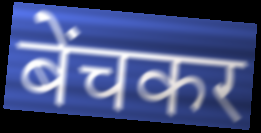
बेंचकर